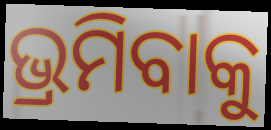
ଭ୍ରମିବାକୁ